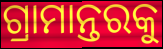
ଗ୍ରାମାନ୍ତରକୁ